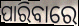
ପାରିବାରେ